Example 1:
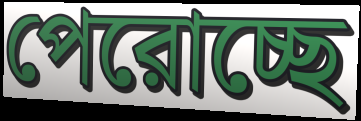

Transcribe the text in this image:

পেরোচ্ছে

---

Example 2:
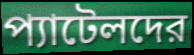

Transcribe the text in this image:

প্যাটেলদের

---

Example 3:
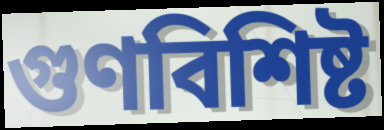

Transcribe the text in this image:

গুণবিশিষ্ট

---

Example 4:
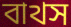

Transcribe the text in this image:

বাথস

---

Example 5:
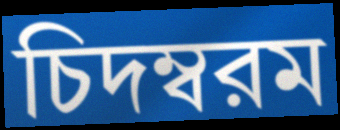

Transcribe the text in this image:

চিদম্বরম